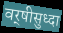
वर्षीसुध्दा